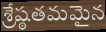
శ్రేష్ఠతమమైన